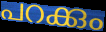
പറക്കും